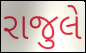
રાજુલે